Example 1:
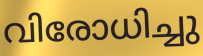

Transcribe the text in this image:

വിരോധിച്ചു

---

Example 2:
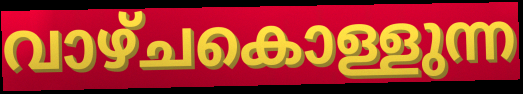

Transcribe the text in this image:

വാഴ്ചകൊള്ളുന്ന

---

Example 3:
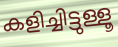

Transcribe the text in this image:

കളിച്ചിട്ടുള്ളൂ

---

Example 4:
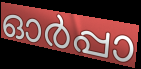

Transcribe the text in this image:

ഓർപ്പാ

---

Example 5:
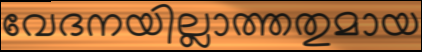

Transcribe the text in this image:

വേദനയില്ലാത്തതുമായ